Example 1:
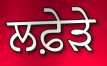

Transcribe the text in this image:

ਲਫ਼ੇੜੇ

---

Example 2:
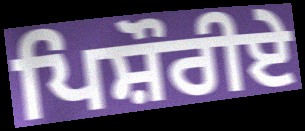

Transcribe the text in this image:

ਪਿਸ਼ੌਰੀਏ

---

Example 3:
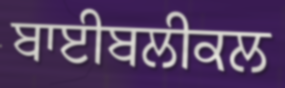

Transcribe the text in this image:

ਬਾਈਬਲੀਕਲ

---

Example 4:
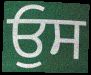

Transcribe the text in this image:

ਓੁਸ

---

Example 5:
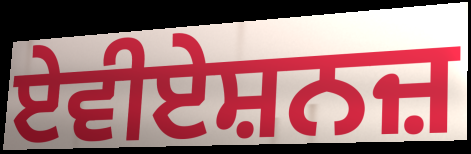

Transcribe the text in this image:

ਏਵੀਏਸ਼ਨਜ਼